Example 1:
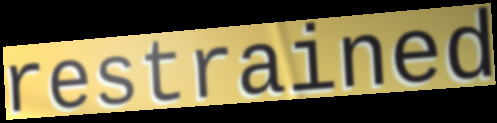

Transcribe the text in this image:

restrained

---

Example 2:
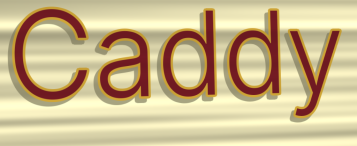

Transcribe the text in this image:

Caddy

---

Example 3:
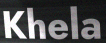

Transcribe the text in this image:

Khela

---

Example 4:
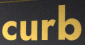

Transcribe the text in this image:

curb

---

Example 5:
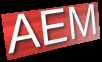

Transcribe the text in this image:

AEM